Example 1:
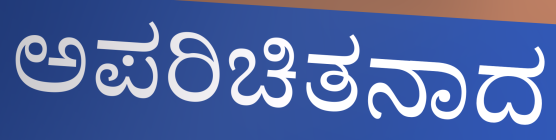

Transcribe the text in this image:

ಅಪರಿಚಿತನಾದ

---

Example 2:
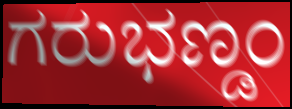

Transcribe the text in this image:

ಗರುಭಣ್ಡಂ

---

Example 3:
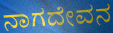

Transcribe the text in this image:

ನಾಗದೇವನ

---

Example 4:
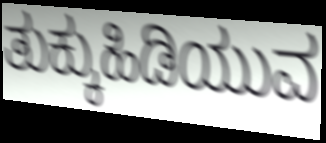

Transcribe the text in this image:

ತುಕ್ಕುಹಿಡಿಯುವ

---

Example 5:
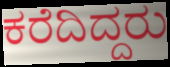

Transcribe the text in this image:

ಕರೆದಿದ್ದರು